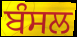
ਬੰਸਲ